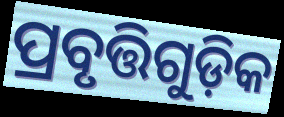
ପ୍ରବୃତ୍ତିଗୁଡ଼ିକ